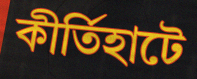
কীর্তিহাটে